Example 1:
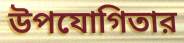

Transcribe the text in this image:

উপযোগিতার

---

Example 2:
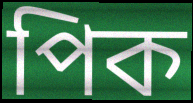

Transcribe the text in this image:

পিক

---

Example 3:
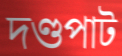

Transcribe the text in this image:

দণ্ডপাট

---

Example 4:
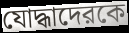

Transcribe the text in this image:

যোদ্ধাদেরকে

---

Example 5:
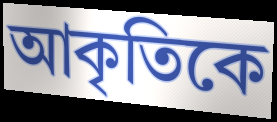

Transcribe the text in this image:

আকৃতিকে